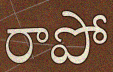
రాపో